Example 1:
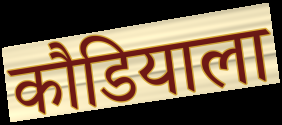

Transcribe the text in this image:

कौडियाला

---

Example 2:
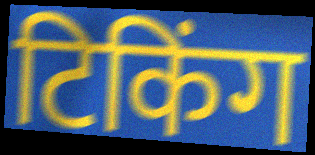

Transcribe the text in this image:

टिकिंग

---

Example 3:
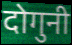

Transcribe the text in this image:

दोगुनी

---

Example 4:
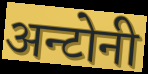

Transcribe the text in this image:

अन्टोनी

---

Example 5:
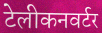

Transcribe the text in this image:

टेलीकनवर्टर